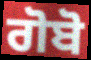
ਗੋਬੋ